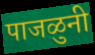
पाजळुनी